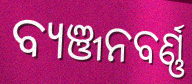
ବ୍ୟଞ୍ଜନବର୍ଣ୍ଣ